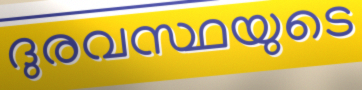
ദുരവസ്ഥയുടെ